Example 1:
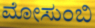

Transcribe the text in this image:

ಮೋಸುಂಬಿ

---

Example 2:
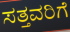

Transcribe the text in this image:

ಸತ್ತವರಿಗೆ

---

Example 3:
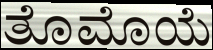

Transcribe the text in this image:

ತೊಮೊಯೆ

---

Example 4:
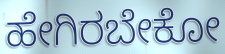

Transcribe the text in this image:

ಹೇಗಿರಬೇಕೋ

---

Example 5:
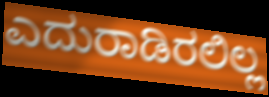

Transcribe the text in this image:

ಎದುರಾಡಿರಲಿಲ್ಲ